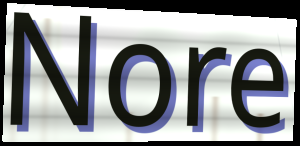
Nore